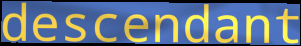
descendant